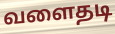
வளைதடி